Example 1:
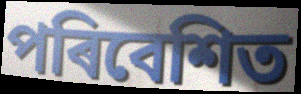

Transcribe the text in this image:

পৰিবেশিত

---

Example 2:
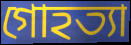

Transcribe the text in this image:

গোহত্যা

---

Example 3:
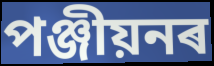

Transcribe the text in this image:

পঞ্জীয়নৰ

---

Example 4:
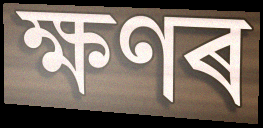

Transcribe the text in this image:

ক্ষণৰ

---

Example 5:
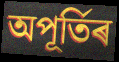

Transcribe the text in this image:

অপূৰ্তিৰ